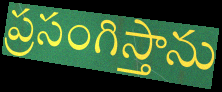
ప్రసంగిస్తాను